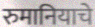
रुमानियाचे